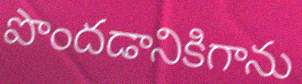
పొందడానికిగాను